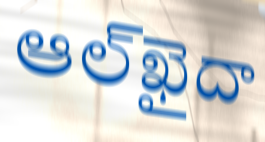
ఆల్‌ఖైదా